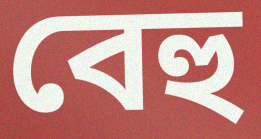
বেহু